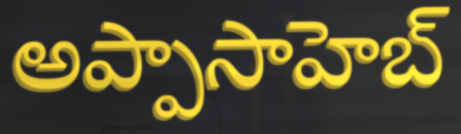
అప్పాసాహెబ్